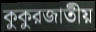
কুকুরজাতীয়